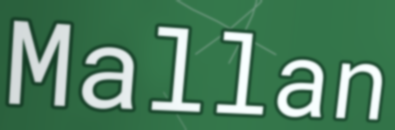
Mallan